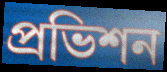
প্রভিশন